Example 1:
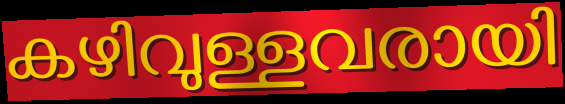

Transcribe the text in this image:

കഴിവുള്ളവരായി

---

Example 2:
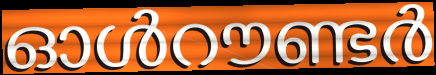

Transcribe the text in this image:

ഓൾറൗണ്ടർ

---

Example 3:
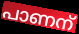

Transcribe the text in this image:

പാണന്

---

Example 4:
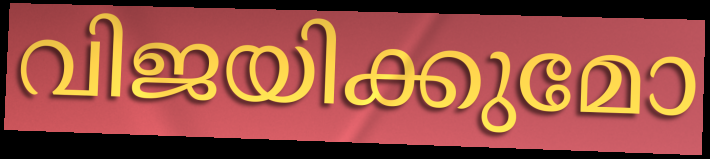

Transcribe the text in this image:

വിജയിക്കുമോ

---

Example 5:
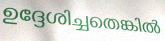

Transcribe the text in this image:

ഉദ്ദേശിച്ചതെങ്കിൽ